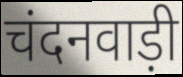
चंदनवाड़ी